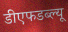
डीएफडब्ल्यू